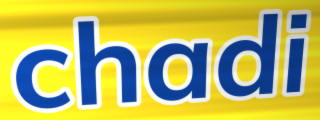
chadi